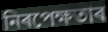
নিৰপেক্ষতাৰ